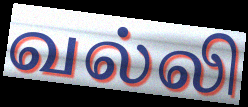
வல்லி